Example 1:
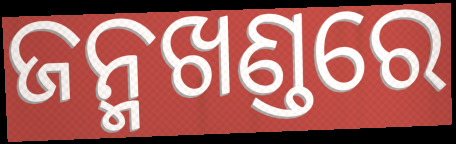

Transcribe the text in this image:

ଜନ୍ମଖଣ୍ଡରେ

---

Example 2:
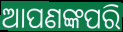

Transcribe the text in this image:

ଆପଣଙ୍କପରି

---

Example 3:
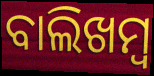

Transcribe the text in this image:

ବାଲିଖମ୍ବ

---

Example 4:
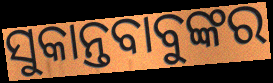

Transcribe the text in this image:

ସୁକାନ୍ତବାବୁଙ୍କର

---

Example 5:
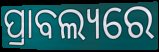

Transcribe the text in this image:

ପ୍ରାବଲ୍ୟରେ